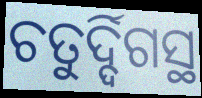
ଚତୁର୍ଦ୍ଦିଗସ୍ଥ